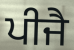
ਪੀਜੈ